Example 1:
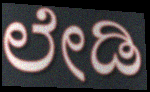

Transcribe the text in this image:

ಲೇಡಿ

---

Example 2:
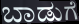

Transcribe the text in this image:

ಬಾಡುಗೆ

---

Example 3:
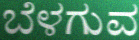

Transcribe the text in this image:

ಬೆಳಗುವ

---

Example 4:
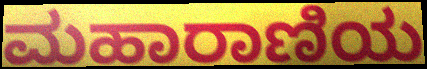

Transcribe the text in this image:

ಮಹಾರಾಣಿಯ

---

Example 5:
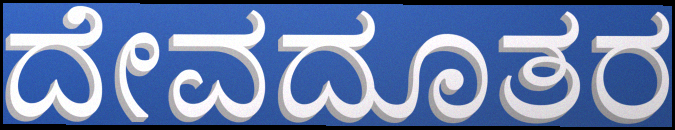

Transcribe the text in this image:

ದೇವದೂತರ